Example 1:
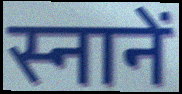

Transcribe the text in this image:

स्नानें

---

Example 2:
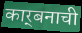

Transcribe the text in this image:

कार्बनाची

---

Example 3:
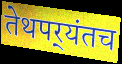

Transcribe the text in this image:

तेथपर्यंतच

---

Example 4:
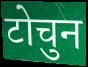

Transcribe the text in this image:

टोचुन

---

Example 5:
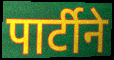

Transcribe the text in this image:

पार्टीने